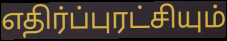
எதிர்ப்புரட்சியும்